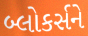
બ્લોકર્સને